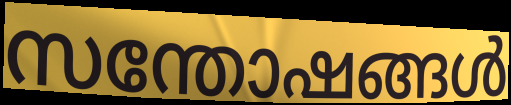
സന്തോഷങ്ങൾ